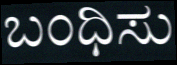
ಬಂಧಿಸು